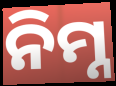
ନିମ୍ନ